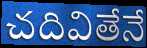
చదివితేనే